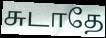
சுடாதே